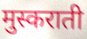
मुस्कराती